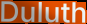
Duluth